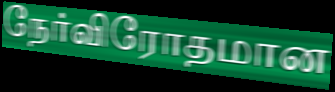
நேர்விரோதமான